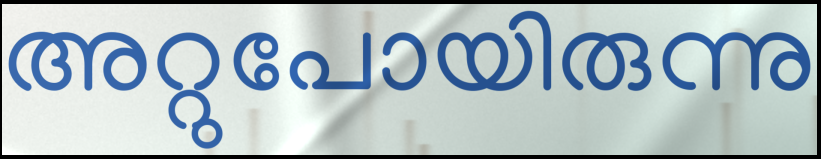
അറ്റുപോയിരുന്നു